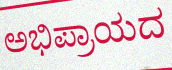
ಅಭಿಪ್ರಾಯದ